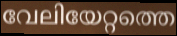
വേലിയേറ്റത്തെ